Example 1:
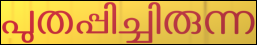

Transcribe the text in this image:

പുതപ്പിച്ചിരുന്ന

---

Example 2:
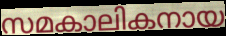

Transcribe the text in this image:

സമകാലികനായ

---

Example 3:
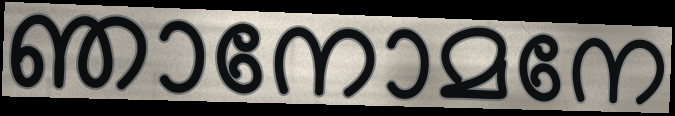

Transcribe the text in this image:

ഞാനോമനേ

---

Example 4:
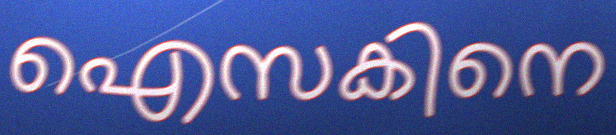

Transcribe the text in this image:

ഐസകിനെ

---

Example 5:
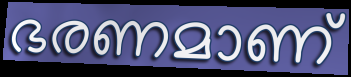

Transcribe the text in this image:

ഭരണമാണ്